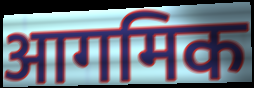
आगमिक